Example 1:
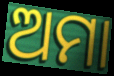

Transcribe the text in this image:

ଅମା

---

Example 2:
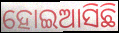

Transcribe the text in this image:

ହୋଇଆସିଛି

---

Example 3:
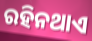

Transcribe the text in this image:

ରହିନଥାଏ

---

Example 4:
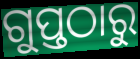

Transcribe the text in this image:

ଗୁପ୍ତଠାରୁ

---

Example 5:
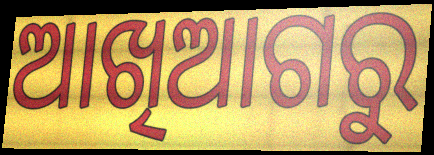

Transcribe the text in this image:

ଆଖିଆଗରୁ